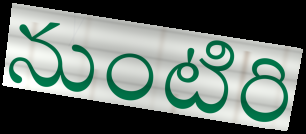
నుంటిరి